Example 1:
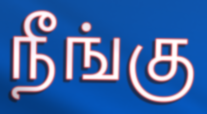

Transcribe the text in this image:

நீங்கு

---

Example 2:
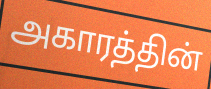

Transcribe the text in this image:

அகாரத்தின்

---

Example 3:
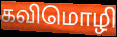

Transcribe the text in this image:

கவிமொழி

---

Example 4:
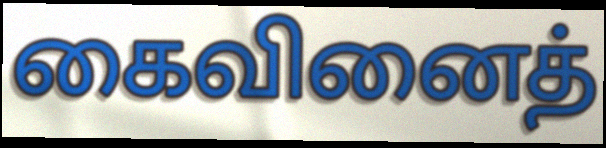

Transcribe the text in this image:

கைவினைத்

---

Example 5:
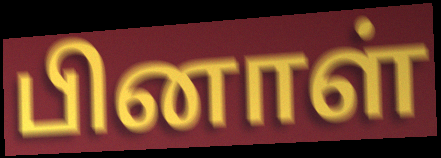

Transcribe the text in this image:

பினாள்